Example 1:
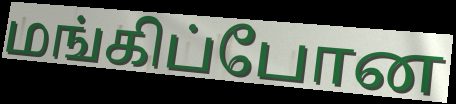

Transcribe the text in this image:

மங்கிப்போன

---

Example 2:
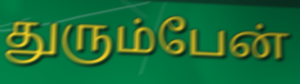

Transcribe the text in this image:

துரும்பேன்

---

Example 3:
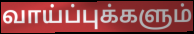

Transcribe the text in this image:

வாய்ப்புக்களும்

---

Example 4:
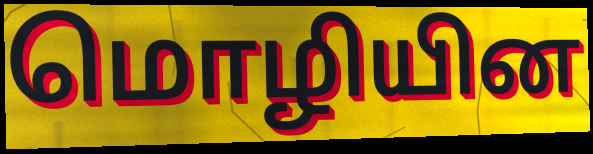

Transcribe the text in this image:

மொழியின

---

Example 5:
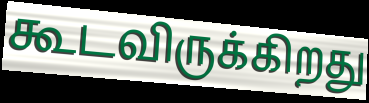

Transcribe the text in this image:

கூடவிருக்கிறது